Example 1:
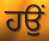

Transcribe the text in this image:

ਹਉਂ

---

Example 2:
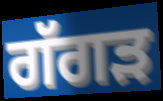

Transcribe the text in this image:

ਗੱਗੜ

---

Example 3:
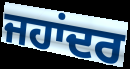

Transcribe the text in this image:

ਜਹਾਂਦਰ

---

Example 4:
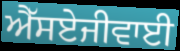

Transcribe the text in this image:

ਐੱਸਏਜੀਵਾਈ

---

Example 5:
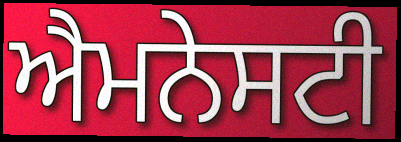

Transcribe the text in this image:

ਐਮਨੇਸਟੀ